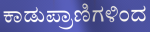
ಕಾಡುಪ್ರಾಣಿಗಳಿಂದ